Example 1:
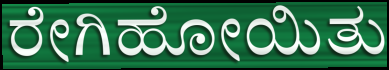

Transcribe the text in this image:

ರೇಗಿಹೋಯಿತು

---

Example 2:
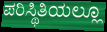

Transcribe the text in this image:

ಪರಿಸ್ಥಿತಿಯಲ್ಲೂ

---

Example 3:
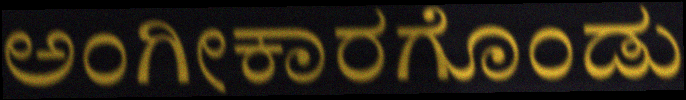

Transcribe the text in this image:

ಅಂಗೀಕಾರಗೊಂಡು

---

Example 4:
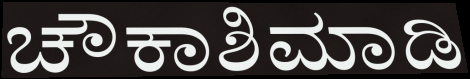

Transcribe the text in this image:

ಚೌಕಾಶಿಮಾಡಿ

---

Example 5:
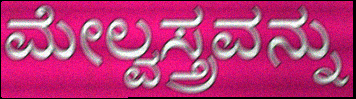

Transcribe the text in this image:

ಮೇಲ್ವಸ್ತ್ರವನ್ನು